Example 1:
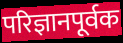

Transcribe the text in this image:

परिज्ञानपूर्वक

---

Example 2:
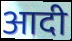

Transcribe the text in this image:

आदी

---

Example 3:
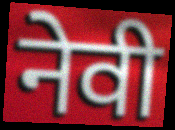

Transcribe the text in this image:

नेवी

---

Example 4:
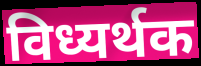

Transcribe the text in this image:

विध्यर्थक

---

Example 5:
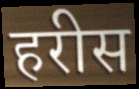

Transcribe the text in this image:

हरीस